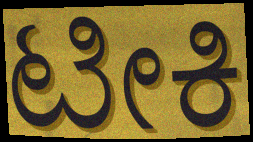
ಟೀಕಿ